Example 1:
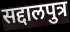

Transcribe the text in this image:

सद्दालपुत्र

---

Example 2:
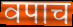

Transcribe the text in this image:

वपाच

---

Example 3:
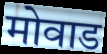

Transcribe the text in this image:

मोवाड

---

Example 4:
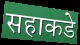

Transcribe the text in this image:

सहाकडे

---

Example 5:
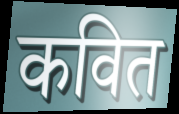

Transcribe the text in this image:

कवित